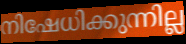
നിഷേധിക്കുന്നില്ല